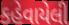
કહેવાયેલી